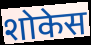
शोकेस